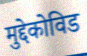
मुद्देकोविड